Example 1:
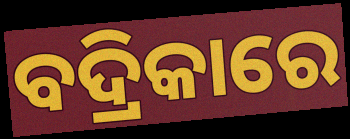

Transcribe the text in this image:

ବଦ୍ରିକାରେ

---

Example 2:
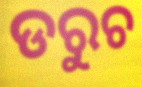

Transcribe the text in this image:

ଡରୁଚ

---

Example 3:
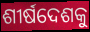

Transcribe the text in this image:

ଶୀର୍ଷଦେଶକୁ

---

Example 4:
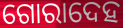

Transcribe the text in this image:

ଗୋରାଦେହ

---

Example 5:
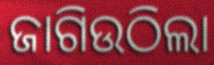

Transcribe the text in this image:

ଜାଗିଉଠିଲା